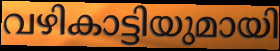
വഴികാട്ടിയുമായി